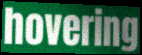
hovering